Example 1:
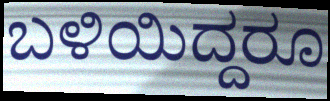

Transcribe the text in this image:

ಬಳಿಯಿದ್ದರೂ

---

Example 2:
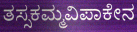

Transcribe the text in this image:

ತಸ್ಸಕಮ್ಮವಿಪಾಕೇನ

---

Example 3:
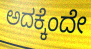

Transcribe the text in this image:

ಅದಕ್ಕೆಂದೇ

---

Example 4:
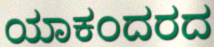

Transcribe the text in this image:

ಯಾಕಂದರದ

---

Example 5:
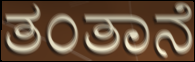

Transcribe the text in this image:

ತಂತಾನೆ